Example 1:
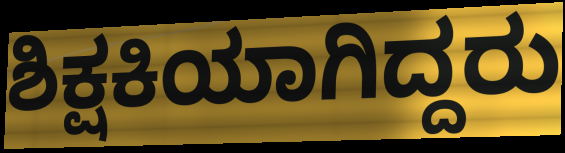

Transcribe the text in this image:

ಶಿಕ್ಷಕಿಯಾಗಿದ್ದರು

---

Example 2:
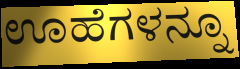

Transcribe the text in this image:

ಊಹೆಗಳನ್ನೂ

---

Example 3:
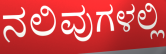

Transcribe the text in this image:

ನಲಿವುಗಳಲ್ಲಿ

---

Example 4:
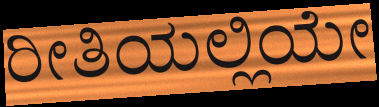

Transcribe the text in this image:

ರೀತಿಯಲ್ಲಿಯೇ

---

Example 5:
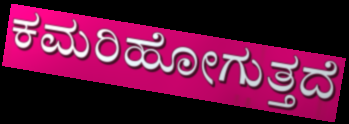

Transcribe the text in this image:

ಕಮರಿಹೋಗುತ್ತದೆ